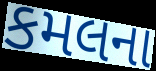
કમલના